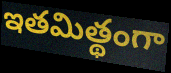
ఇతమిత్థంగా